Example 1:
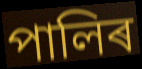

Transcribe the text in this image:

পালিৰ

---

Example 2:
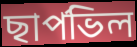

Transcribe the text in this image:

ছাৰ্পভিল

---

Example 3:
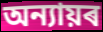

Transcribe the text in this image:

অন্যায়ৰ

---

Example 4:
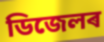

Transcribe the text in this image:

ডিজেলৰ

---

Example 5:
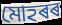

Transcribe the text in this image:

মোহৰৰ